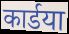
कार्डया